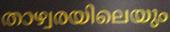
താഴ്വരയിലെയും